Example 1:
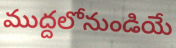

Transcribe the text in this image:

ముద్దలోనుండియే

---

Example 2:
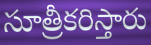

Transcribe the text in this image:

సూత్రీకరిస్తారు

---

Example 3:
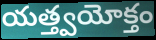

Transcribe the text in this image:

యత్త్వయోక్తం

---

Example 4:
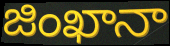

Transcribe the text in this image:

జింఖానా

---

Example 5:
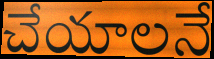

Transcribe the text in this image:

చేయాలనే